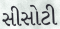
સીસોટી